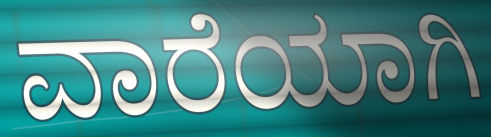
ವಾರೆಯಾಗಿ